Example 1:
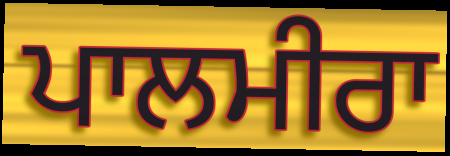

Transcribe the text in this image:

ਪਾਲਮੀਰਾ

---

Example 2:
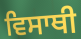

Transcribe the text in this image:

ਵਿਸਾਥੀ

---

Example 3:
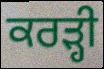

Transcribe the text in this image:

ਕਰੜ੍ਹੀ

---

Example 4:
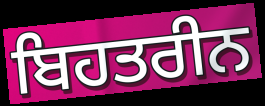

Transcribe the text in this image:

ਬਿਹਤਰੀਨ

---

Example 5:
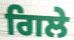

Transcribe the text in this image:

ਗਿਲੇ